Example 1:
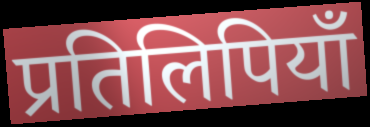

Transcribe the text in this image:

प्रतिलिपियाँ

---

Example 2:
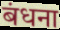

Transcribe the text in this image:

बंधना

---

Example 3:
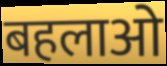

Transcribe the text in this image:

बहलाओ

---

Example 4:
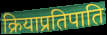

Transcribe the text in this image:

क्रियाप्रतिपाति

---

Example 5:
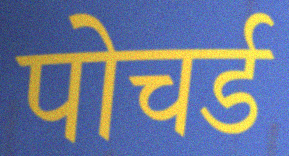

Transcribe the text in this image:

पोचर्ड